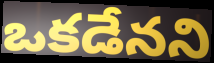
ఒకడేనని